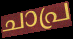
ചാപ്ര